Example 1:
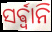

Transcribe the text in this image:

ସର୍ଵ୍ଵାନି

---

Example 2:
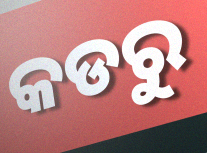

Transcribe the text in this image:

କଡରୁ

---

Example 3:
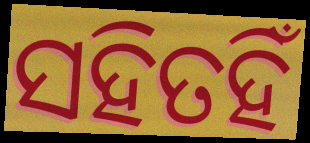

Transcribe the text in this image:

ସହିତହିଁ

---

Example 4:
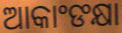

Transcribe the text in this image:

ଆକାଂଙକ୍ଷା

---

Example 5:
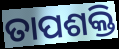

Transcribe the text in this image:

ତାପଶକ୍ତି